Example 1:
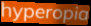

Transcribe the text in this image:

hyperopia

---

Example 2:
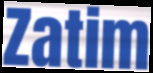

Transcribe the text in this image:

Zatim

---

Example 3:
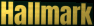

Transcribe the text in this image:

Hallmark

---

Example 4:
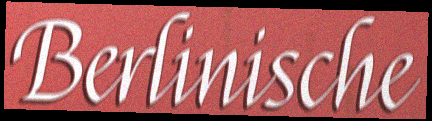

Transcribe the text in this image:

Berlinische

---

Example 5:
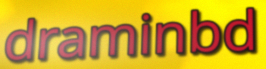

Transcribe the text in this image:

draminbd